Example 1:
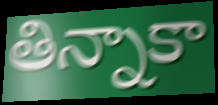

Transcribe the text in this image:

తిన్నాకా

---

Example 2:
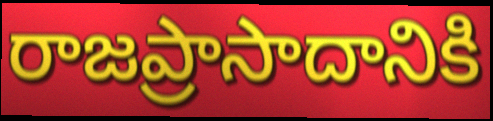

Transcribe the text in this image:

రాజప్రాసాదానికి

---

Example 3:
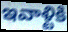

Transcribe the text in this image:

ఇవాళ్టికి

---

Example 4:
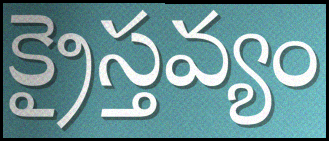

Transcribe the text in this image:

క్రైస్తవ్యం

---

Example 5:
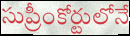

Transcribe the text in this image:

సుప్రీంకోర్టులోనే